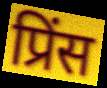
प्रिंस